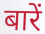
बारें